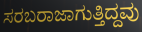
ಸರಬರಾಜಾಗುತ್ತಿದ್ದವು